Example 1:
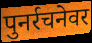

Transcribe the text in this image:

पुनर्रचनेवर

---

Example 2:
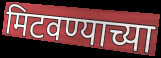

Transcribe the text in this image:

मिटवण्याच्या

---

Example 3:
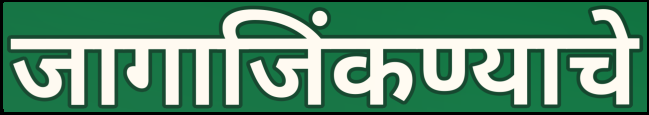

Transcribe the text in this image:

जागाजिंकण्याचे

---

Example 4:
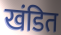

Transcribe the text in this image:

खंडित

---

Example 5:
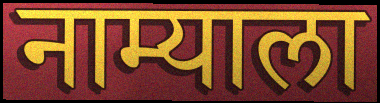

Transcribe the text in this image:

नाम्याला